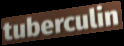
tuberculin